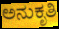
ಅನುಕೃತಿ